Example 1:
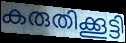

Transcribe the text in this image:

കരുതിക്കൂട്ടി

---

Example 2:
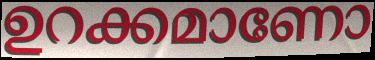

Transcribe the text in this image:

ഉറക്കമാണോ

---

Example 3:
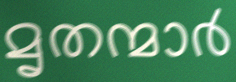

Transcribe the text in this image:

മൃതന്മാർ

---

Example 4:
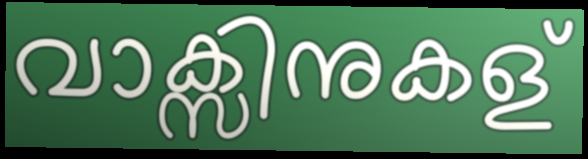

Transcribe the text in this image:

വാക്സിനുകള്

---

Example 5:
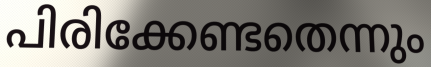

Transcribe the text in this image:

പിരിക്കേണ്ടതെന്നും